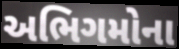
અભિગમોના